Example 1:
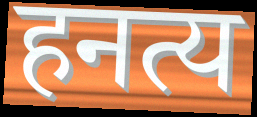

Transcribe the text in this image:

हनत्य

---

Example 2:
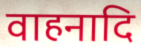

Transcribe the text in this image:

वाहनादि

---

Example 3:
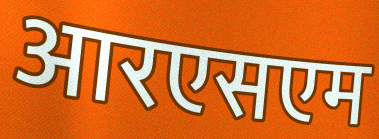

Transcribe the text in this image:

आरएसएम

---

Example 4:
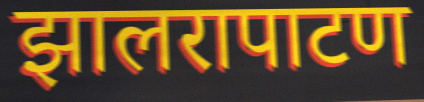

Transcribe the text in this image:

झालरापाटण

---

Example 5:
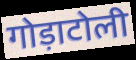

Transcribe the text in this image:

गोड़ाटोली